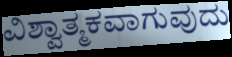
ವಿಶ್ವಾತ್ಮಕವಾಗುವುದು